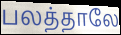
பலத்தாலே